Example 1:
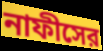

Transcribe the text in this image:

নাফীসের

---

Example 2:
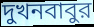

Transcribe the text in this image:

দুখনবাবুর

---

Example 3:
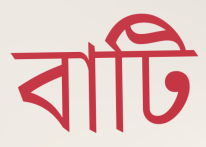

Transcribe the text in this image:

বাটি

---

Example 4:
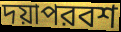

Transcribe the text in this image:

দয়াপরবশ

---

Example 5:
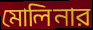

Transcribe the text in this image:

মোলিনার